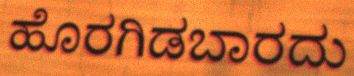
ಹೊರಗಿಡಬಾರದು